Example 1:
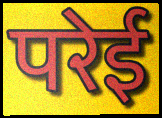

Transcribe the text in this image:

परेई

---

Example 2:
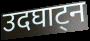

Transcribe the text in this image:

उदघाट्न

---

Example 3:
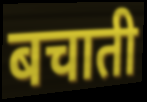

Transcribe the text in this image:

बचाती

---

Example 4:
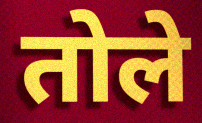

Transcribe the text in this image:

तोले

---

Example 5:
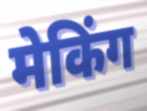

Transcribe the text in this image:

मेकिंग